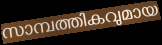
സാമ്പത്തികവുമായ